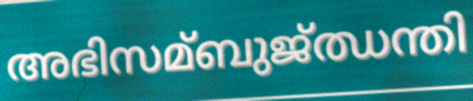
അഭിസമ്ബുജ്ഝന്തി